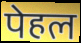
पेहल